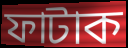
ফাটাক